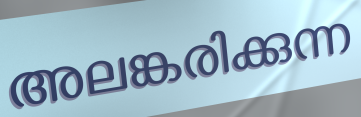
അലങ്കരിക്കുന്ന